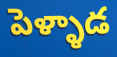
పెళ్ళాడ